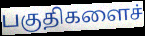
பகுதிகளைச்